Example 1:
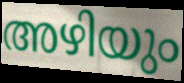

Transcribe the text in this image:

അഴിയും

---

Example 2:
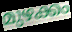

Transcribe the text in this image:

മുഴക്കം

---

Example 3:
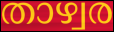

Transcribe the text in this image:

താഴ്വര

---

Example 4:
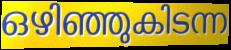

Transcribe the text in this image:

ഒഴിഞ്ഞുകിടന്ന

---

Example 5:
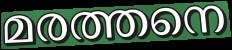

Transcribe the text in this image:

മരത്തനെ